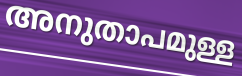
അനുതാപമുള്ള